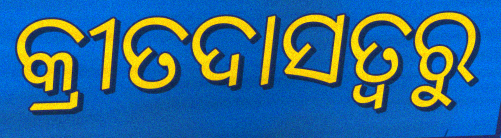
କ୍ରୀତଦାସତ୍ୱରୁ